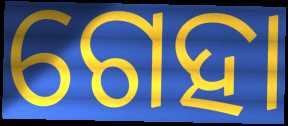
ଗେହା